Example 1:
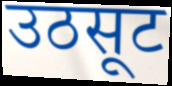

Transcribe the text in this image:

उठसूट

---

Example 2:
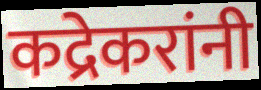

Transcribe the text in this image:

कद्रेकरांनी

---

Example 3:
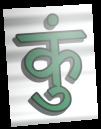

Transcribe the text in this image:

कुं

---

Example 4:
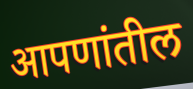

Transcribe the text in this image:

आपणांतील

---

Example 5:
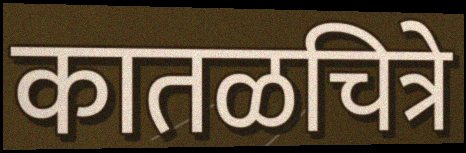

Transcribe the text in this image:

कातळचित्रे